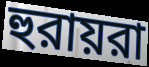
হুরায়রা